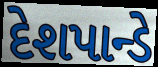
દેશપાન્ડે